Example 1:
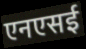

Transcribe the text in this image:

एनएसई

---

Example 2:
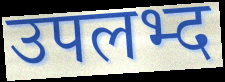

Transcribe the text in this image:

उपलभ्द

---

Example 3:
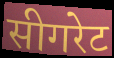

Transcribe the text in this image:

सीगरेट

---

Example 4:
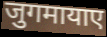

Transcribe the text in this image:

जुगमायाए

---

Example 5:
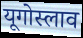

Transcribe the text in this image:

यूगोस्लाव